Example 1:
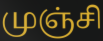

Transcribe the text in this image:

முஞ்சி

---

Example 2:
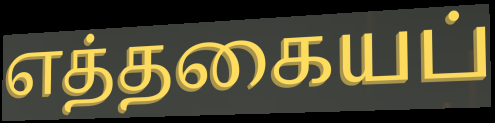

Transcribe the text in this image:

எத்தகையப்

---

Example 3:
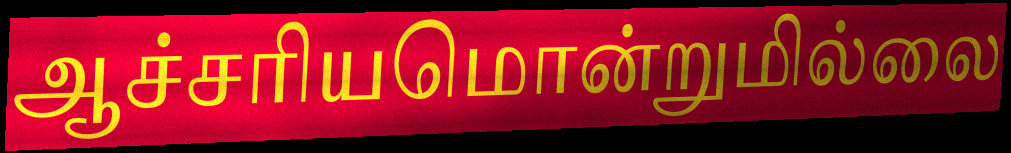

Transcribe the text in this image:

ஆச்சரியமொன்றுமில்லை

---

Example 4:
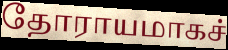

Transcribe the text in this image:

தோராயமாகச்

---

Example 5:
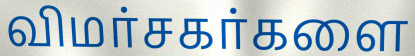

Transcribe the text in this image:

விமர்சகர்களை